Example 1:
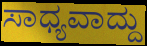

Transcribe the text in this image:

ಸಾಧ್ಯವಾದ್ದು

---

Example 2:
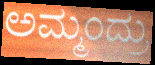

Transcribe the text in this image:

ಅಮ್ಮಂದ್ರು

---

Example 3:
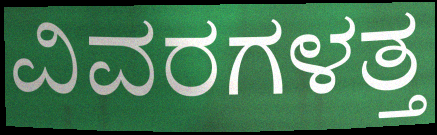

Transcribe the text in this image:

ವಿವರಗಳತ್ತ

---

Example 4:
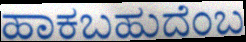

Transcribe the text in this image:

ಹಾಕಬಹುದೆಂಬ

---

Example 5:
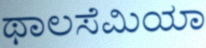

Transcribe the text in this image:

ಥಾಲಸೆಮಿಯಾ